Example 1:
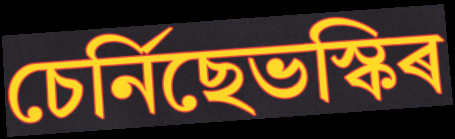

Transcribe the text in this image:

চেৰ্নিছেভস্কিৰ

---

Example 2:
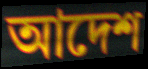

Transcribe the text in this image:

আদেশ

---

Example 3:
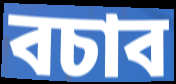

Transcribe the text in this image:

বচাব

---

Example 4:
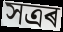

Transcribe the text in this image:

সত্ৰৰ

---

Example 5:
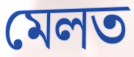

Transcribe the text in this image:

মেলত